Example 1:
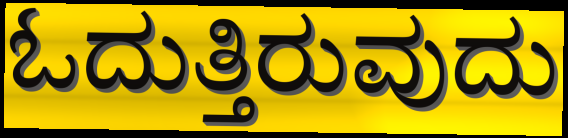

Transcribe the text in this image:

ಓದುತ್ತಿರುವುದು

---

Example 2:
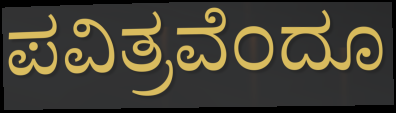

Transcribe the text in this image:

ಪವಿತ್ರವೆಂದೂ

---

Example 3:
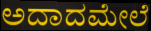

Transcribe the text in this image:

ಅದಾದಮೇಲೆ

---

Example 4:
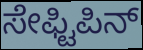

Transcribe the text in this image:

ಸೇಫ್ಟಿಪಿನ್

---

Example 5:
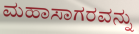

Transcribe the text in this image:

ಮಹಾಸಾಗರವನ್ನು